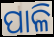
ପାଳି